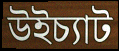
উইচ্যাট